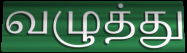
வழுத்து